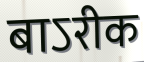
बाऽरीक